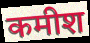
कमीश